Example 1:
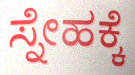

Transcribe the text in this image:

ಸ್ನೇಹಕ್ಕೆ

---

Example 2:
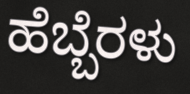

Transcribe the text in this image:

ಹೆಬ್ಬೆರಳು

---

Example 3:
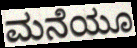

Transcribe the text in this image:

ಮನೆಯೂ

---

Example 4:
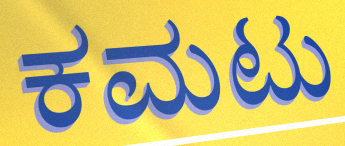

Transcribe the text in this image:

ಕಮಟು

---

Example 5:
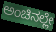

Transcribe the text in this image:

ಅಂಚಿನಲ್ಲೇ